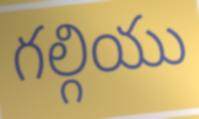
గల్గియు